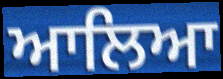
ਆਲਿਆ